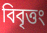
বিবৃত্তং